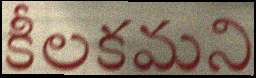
కీలకమని